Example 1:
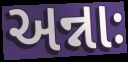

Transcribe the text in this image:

અન્નાઃ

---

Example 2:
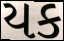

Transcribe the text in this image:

યક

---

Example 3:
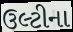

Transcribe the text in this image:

ઉલ્ટીના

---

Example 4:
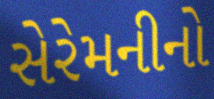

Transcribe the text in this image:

સેરેમનીનો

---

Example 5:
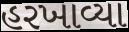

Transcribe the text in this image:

હરખાવ્યા